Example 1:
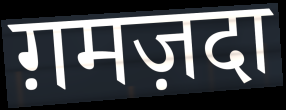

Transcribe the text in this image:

ग़मज़दा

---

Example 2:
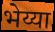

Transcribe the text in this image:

भेय्या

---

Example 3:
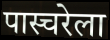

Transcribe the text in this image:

पास्चरेला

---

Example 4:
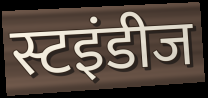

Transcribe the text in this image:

स्टइंडीज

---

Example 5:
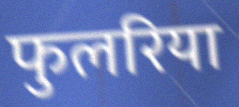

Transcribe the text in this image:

फुलरिया